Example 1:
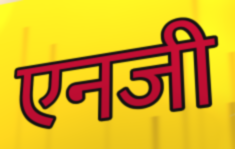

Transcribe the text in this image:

एनजी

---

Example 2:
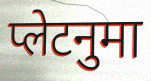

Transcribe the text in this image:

प्लेटनुमा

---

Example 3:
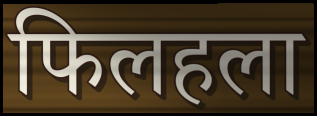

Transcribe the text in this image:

फिलहला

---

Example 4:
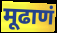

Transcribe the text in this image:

मूढाणं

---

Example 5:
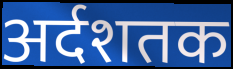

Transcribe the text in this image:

अर्दशतक